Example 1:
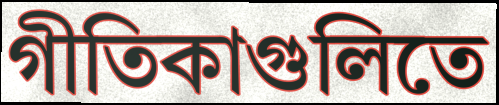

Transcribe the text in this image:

গীতিকাগুলিতে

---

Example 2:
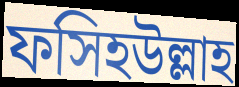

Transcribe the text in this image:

ফসিহউল্লাহ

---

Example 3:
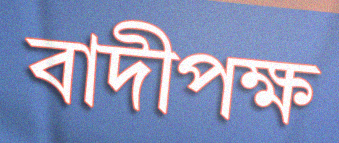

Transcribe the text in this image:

বাদীপক্ষ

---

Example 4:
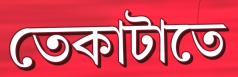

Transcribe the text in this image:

তেকাটাতে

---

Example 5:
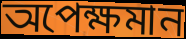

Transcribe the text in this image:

অপেক্ষমান